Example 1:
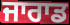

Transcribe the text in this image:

ਜਾਰਾਡ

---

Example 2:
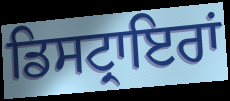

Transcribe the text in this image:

ਡਿਸਟ੍ਰਾਇਰਾਂ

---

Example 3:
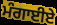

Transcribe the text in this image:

ਮੰਗਾਈਏ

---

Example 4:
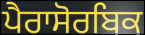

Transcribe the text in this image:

ਪੈਰਾਸੋਰਬਿਕ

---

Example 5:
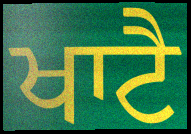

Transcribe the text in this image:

ਖਾਟੈ